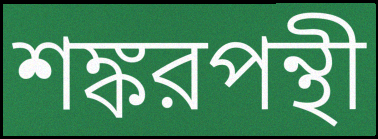
শঙ্করপন্থী